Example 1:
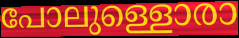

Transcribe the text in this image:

പോലുള്ളൊരാ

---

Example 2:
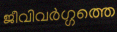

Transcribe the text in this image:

ജീവിവർഗ്ഗത്തെ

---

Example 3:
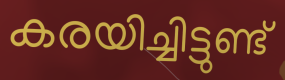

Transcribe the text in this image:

കരയിച്ചിട്ടുണ്ട്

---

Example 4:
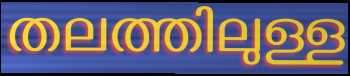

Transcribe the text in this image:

തലത്തിലുള്ള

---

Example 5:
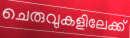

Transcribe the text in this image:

ചെരുവുകളിലേക്ക്